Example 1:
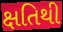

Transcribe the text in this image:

ક્ષતિથી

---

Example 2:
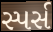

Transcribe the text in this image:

સ્પર્સ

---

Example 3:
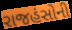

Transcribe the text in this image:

રાજહંસોની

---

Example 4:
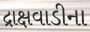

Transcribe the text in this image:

દ્રાક્ષવાડીના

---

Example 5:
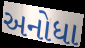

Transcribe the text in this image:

અનોધા